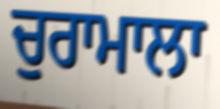
ਚੁਰਾਮਾਲਾ